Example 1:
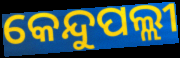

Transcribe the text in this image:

କେନ୍ଦୁପଲ୍ଲୀ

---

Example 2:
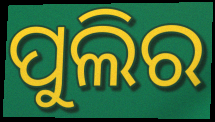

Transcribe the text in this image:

ପୁଲିର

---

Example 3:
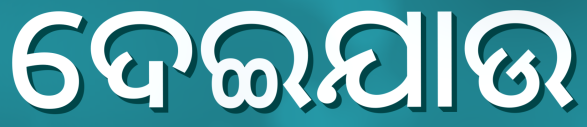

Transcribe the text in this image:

ଦେଇଯାଉ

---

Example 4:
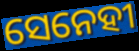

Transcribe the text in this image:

ସେନେହୀ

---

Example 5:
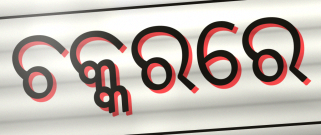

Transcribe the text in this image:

ଚକ୍କରରେ